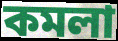
কমলা